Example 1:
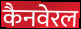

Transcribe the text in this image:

कैनवेरल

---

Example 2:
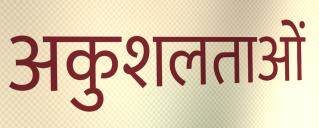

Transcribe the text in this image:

अकुशलताओं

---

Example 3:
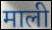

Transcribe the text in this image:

माली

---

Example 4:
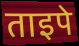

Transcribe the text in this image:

ताइपे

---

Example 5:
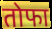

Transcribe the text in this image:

तोफा